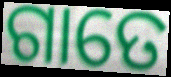
ଗାତେ